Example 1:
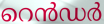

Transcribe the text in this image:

റെൻഡർ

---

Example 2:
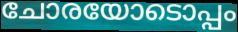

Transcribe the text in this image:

ചോരയോടൊപ്പം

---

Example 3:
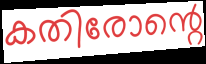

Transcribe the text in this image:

കതിരോന്റെ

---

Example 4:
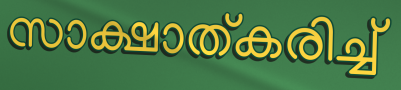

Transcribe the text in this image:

സാക്ഷാത്കരിച്ച്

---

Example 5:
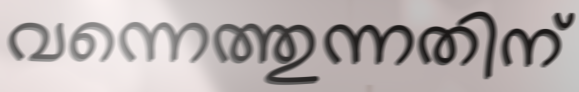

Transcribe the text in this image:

വന്നെത്തുന്നതിന്